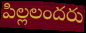
పిల్లలందరు